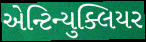
એન્ટિન્યુક્લિયર